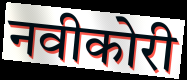
नवीकोरी